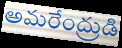
అమరేంద్రుడి